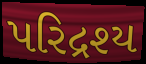
પરિદ્રશ્ય